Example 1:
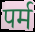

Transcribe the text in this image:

पर्म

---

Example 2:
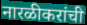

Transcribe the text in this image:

नारळीकरांची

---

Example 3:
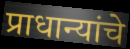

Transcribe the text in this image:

प्राधान्यांचे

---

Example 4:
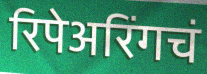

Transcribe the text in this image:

रिपेअरिंगचं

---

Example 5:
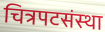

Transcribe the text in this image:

चित्रपटसंस्था